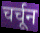
चर्चून